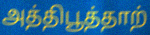
அத்திபூத்தாற்